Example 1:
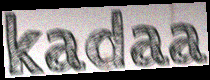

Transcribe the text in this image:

kadaa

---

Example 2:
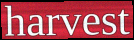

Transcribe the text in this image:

harvest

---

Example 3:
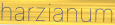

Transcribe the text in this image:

harzianum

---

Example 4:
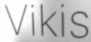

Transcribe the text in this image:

Vikis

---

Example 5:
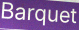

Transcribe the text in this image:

Barquet